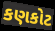
કણકોટ